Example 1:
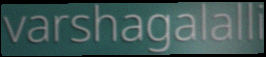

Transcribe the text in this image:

varshagalalli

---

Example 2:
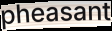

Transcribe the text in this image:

pheasant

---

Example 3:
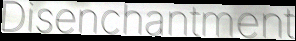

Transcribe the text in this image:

Disenchantment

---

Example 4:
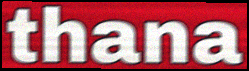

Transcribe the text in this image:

thana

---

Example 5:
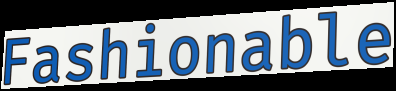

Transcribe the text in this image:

Fashionable